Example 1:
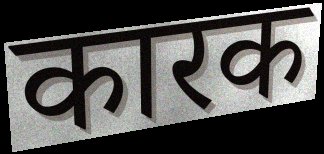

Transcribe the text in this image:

कारक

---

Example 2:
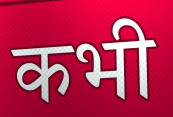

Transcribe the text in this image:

कभी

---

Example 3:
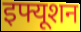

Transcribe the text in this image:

इफ्यूशन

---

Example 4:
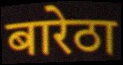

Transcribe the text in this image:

बारेठा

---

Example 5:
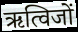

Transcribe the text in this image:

ऋत्विजों